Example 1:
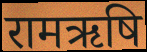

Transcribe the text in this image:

रामऋषि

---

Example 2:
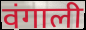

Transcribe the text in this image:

वंगाली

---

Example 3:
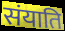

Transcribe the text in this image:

संयाति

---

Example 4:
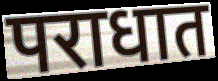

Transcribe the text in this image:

पराधात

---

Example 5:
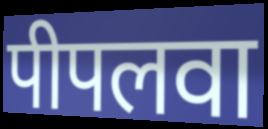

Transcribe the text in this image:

पीपलवा